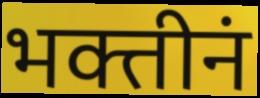
भक्तीनं